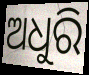
ଅଧୁରି